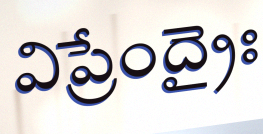
విప్రేంద్రైః